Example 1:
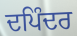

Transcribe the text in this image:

ਦਪਿੰਦਰ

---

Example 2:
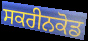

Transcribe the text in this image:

ਸਕਰੀਨਕੋਡ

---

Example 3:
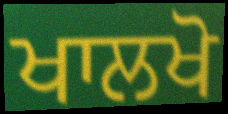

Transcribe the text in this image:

ਖਾਲਖੋ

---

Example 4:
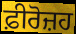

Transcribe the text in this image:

ਫ਼ੀਰੋਜ਼ਹ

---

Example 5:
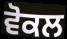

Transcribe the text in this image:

ਵੋਕਲ